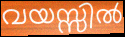
വയസ്സിൽ